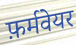
फ़र्मवेयर